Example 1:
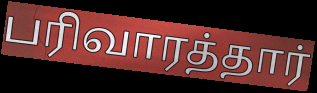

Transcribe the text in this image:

பரிவாரத்தார்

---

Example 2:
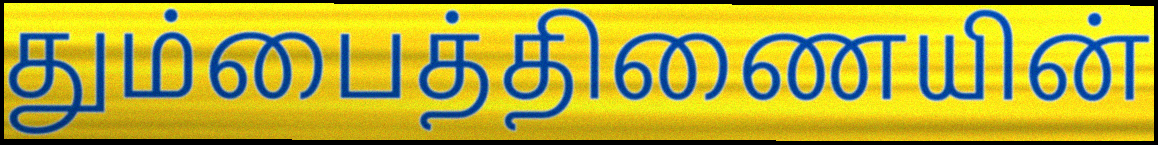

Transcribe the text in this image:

தும்பைத்திணையின்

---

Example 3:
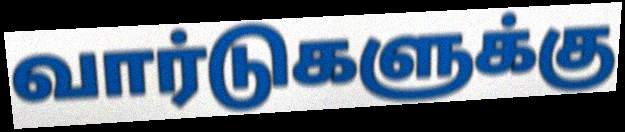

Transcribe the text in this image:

வார்டுகளுக்கு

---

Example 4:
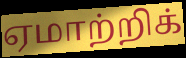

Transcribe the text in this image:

ஏமாற்றிக்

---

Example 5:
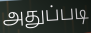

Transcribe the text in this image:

அதுப்படி